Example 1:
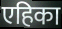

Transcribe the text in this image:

एहिका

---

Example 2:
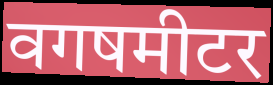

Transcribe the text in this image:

वगषमीटर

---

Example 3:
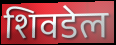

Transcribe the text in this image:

शिवडेल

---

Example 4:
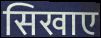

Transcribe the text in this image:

सिखाए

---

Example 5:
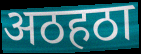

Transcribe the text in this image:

अठहठा